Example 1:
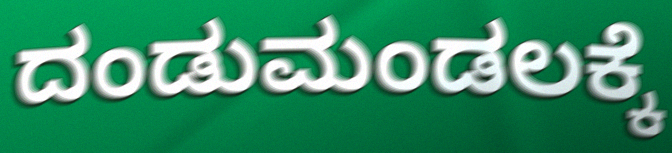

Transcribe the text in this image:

ದಂಡುಮಂಡಲಕ್ಕೆ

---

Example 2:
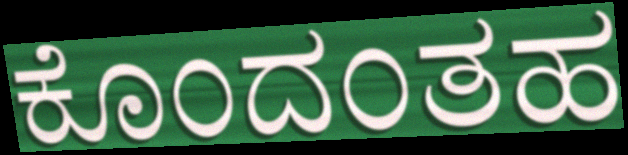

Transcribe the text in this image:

ಕೊಂದಂತಹ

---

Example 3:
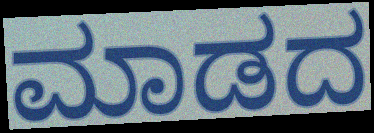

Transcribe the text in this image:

ಮಾಡದ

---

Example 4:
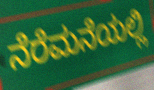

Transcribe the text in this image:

ನೆರೆಮನೆಯಲ್ಲಿ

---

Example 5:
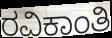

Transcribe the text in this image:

ರವಿಕಾಂತಿ